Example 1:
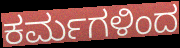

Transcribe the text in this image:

ಕರ್ಮಗಳಿಂದ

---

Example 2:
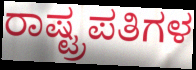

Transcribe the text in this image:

ರಾಷ್ಟ್ರಪತಿಗಳ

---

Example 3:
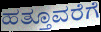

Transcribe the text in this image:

ಹತ್ತೂವರೆಗೆ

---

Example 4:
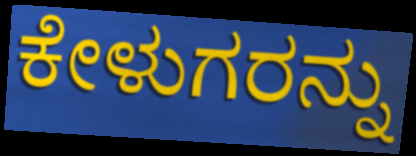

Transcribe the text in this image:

ಕೇಳುಗರನ್ನು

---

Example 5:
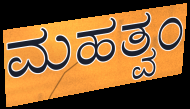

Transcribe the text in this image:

ಮಹತ್ವಂ